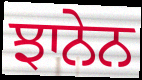
ਝਾਨੇਨ